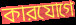
কারযোগে